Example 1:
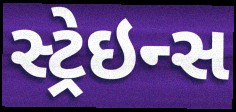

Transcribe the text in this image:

સ્ટ્રેઇન્સ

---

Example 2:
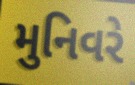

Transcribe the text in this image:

મુનિવરે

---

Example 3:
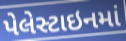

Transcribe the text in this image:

પેલેસ્ટાઇનમાં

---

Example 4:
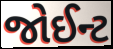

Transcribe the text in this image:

જોઈન્ટ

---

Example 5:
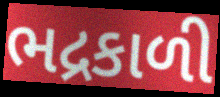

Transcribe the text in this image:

ભદ્રકાળી